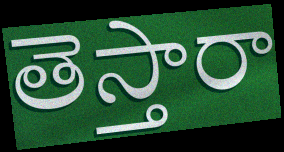
తెస్తారా